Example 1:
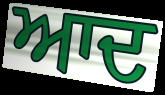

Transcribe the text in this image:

ਆਦ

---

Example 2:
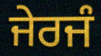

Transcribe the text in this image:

ਜੇਰਜੰ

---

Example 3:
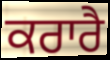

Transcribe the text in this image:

ਕਰਾਰੈ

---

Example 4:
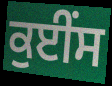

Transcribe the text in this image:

ਕੁਈਂਸ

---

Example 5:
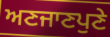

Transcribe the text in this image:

ਅਣਜਾਣਪੁਣੇ